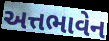
અત્તભાવેન